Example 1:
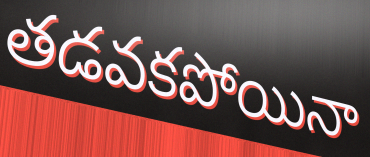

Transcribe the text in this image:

తడవకపోయినా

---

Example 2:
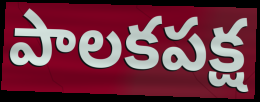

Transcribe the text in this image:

పాలకపక్ష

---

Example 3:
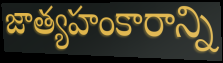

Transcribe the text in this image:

జాత్యహంకారాన్ని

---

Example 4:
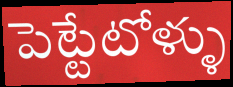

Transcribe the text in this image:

పెట్టేటోళ్ళు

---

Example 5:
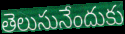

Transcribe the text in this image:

తెలుసునేందుకు